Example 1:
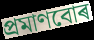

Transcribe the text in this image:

প্ৰমাণবোৰ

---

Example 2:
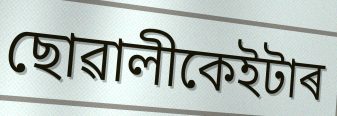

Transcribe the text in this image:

ছোৱালীকেইটাৰ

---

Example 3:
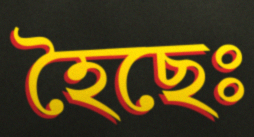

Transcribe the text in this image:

হৈছেঃ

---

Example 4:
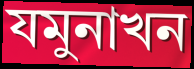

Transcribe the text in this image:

যমুনাখন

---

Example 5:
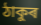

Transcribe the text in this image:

ঠাকুৰ